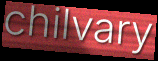
chilvary